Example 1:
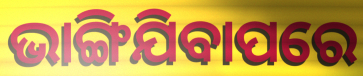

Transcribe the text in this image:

ଭାଙ୍ଗିଯିବାପରେ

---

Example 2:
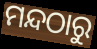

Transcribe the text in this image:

ମନ୍ଦଠାରୁ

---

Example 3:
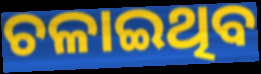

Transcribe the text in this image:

ଚଳାଇଥିବ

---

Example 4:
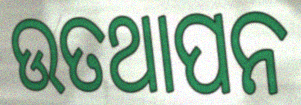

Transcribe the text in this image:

ଉତଥାପନ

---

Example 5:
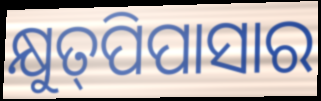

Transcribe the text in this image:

କ୍ଷୁତ୍‍ପିପାସାର